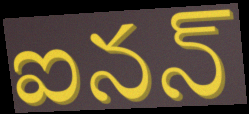
ఐనన్